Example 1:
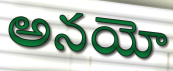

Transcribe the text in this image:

అనయో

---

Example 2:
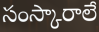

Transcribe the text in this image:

సంస్కారాలే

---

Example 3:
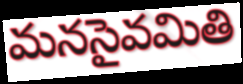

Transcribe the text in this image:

మనసైవమితి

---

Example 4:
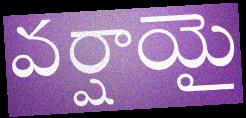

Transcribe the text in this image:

వర్షాయై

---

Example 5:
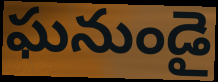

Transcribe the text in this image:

ఘనుండై